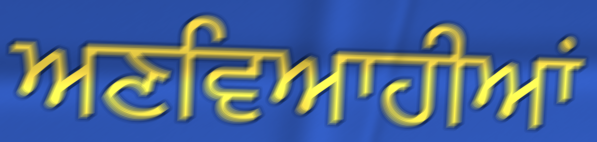
ਅਣਵਿਆਹੀਆਂ